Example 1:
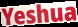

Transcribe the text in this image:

Yeshua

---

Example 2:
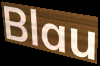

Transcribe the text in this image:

Blau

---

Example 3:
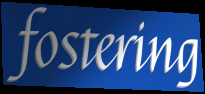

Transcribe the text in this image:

fostering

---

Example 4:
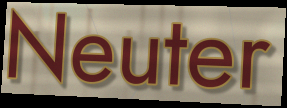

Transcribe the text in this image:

Neuter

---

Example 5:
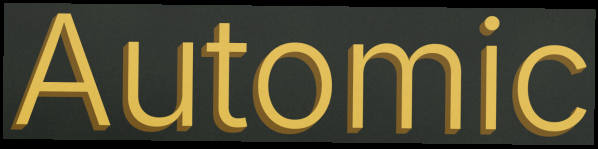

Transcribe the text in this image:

Automic